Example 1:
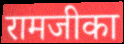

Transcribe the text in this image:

रामजीका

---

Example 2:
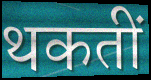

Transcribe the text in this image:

थकतीं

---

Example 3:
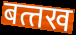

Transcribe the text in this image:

बत्‍तख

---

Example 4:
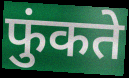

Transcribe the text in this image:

फुंकते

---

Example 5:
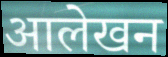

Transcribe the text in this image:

आलेखन